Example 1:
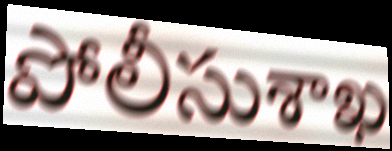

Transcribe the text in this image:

పోలీసుశాఖ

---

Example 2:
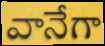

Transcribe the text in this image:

వానేగా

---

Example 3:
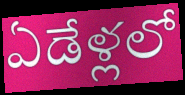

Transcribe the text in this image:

ఏడేళ్లలో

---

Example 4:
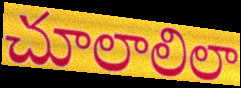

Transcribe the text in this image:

చూలాలిలా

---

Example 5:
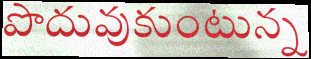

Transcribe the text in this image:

పొదువుకుంటున్న